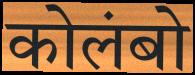
कोलंबो